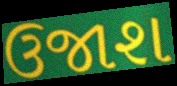
ઉજાશ